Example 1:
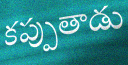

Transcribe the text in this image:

కప్పుతాడు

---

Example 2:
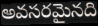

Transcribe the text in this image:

అవసరమైనది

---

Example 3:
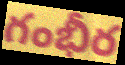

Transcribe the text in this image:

గంభీర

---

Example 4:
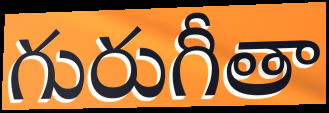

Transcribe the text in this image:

గురుగీతా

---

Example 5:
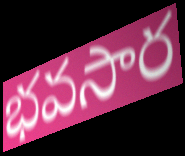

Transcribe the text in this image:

భవసార